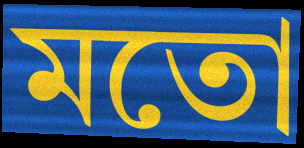
মতো